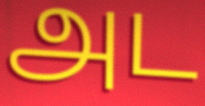
அட